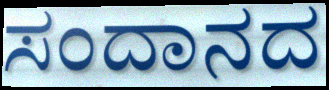
ಸಂದಾನದ